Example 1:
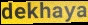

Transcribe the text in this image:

dekhaya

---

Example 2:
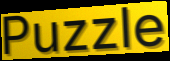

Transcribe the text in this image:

Puzzle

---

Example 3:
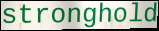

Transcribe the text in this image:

stronghold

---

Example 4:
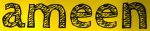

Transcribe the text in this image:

ameen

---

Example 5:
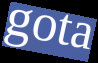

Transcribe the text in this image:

gota